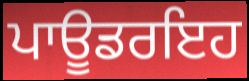
ਪਾਊਡਰਇਹ